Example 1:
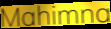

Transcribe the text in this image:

Mahimna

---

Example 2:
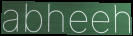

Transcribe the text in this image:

abheeh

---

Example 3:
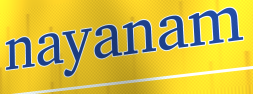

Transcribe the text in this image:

nayanam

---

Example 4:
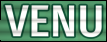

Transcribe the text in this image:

VENU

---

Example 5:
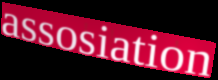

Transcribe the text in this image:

assosiation